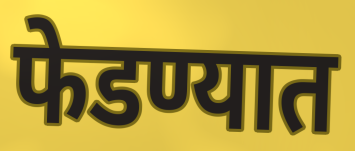
फेडण्यात